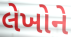
લેખોને